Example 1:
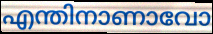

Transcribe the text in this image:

എന്തിനാണാവോ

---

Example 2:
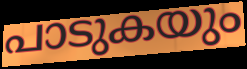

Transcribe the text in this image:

പാടുകയും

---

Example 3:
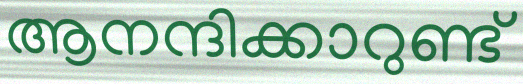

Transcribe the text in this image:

ആനന്ദിക്കാറുണ്ട്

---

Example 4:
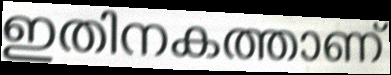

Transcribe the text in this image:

ഇതിനകത്താണ്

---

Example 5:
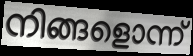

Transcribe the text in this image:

നിങ്ങളൊന്ന്